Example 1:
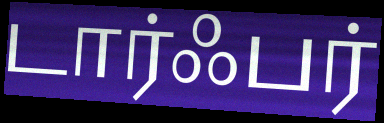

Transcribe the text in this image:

டார்ஃபர்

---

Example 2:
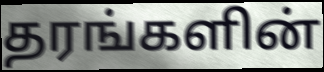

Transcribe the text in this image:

தரங்களின்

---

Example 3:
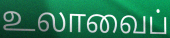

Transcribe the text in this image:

உலாவைப்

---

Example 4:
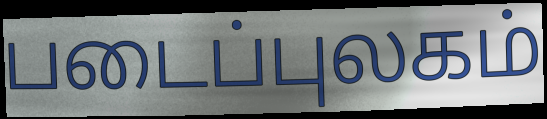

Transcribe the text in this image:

படைப்புலகம்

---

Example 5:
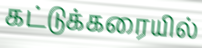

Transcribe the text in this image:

கட்டுக்கரையில்